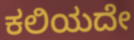
ಕಲಿಯದೇ